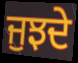
ਜੁਝਦੇ